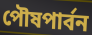
পৌষপার্বন